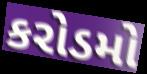
કરોડમો